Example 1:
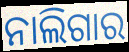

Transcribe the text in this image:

ନାଲିଗାର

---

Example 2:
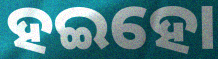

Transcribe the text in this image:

ହଇହୋ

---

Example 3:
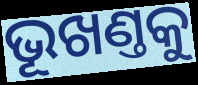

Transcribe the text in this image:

ଭୂଖଣ୍ତକୁ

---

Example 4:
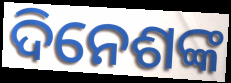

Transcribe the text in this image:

ଦିନେଶଙ୍କ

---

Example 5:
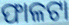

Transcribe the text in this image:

ଫାଳଟା